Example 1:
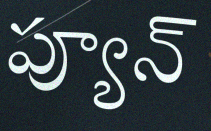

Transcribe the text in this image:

ప్యూన్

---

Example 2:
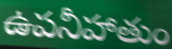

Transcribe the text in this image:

ఉపనీహాతుం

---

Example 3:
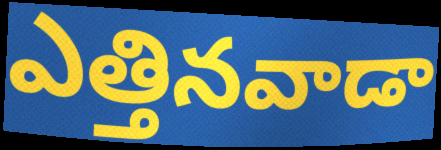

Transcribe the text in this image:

ఎత్తినవాడా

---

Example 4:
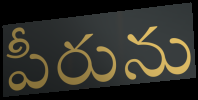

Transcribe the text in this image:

పీరును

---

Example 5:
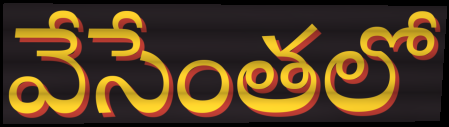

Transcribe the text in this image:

వేసేంతలో